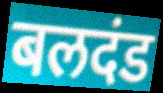
बलदंड